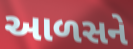
આળસને